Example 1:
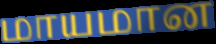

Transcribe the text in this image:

மாயமான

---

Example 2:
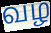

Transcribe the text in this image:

வழ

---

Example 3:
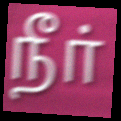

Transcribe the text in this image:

நீர்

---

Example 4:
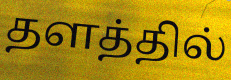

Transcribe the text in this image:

தளத்தில்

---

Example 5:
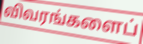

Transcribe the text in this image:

விவரங்களைப்